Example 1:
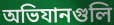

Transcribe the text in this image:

অভিযানগুলি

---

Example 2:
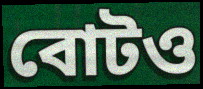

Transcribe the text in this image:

বোটও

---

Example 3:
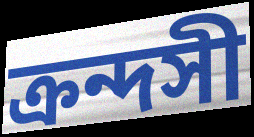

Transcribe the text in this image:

ক্রন্দসী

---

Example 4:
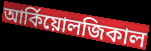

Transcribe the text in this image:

আর্কিয়োলজিকাল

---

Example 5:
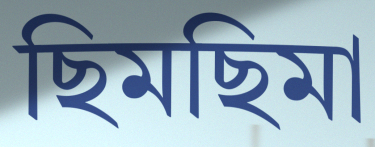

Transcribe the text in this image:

ছিমছিমা